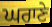
ਘਰਾਣੇ